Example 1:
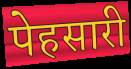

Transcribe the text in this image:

पेहसारी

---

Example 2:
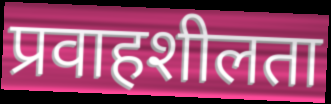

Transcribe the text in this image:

प्रवाहशीलता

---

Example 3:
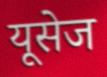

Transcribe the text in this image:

यूसेज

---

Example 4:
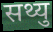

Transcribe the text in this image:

सथ्यु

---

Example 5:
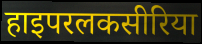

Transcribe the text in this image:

हाइपरलकसीरिया